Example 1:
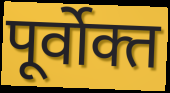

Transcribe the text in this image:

पूर्वोक्‍त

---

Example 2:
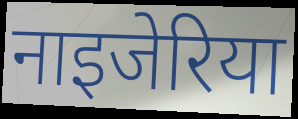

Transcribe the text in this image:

नाइजेरिया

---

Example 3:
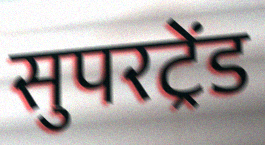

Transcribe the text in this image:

सुपरट्रेंड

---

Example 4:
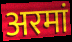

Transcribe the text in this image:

अरमां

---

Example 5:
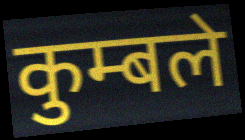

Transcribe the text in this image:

कुम्बले